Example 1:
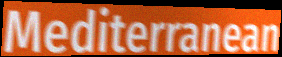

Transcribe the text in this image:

Mediterranean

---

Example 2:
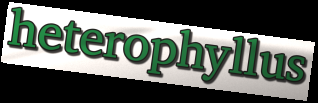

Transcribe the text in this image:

heterophyllus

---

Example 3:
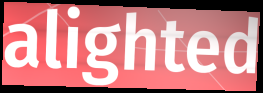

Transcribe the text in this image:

alighted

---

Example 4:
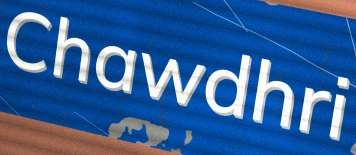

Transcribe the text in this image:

Chawdhri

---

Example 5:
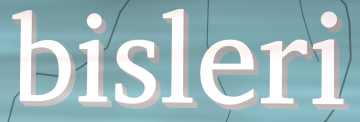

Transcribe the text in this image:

bisleri